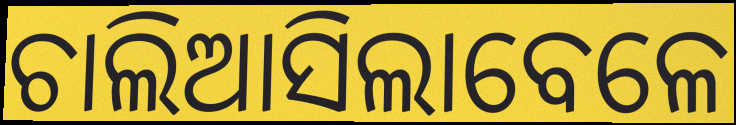
ଚାଲିଆସିଲାବେଳେ